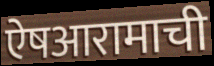
ऐषआरामाची